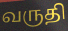
வருதி